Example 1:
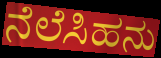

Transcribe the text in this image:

ನೆಲೆಸಿಹನು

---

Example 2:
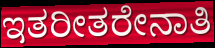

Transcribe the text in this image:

ಇತರೀತರೇನಾತಿ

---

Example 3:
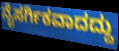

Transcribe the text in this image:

ನೈಸರ್ಗಿಕವಾದದ್ದು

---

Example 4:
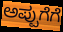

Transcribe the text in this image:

ಅಪ್ಪುಗೆಗೆ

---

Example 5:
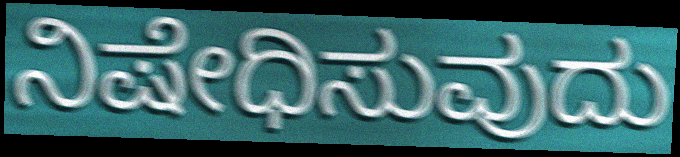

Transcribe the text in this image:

ನಿಷೇಧಿಸುವುದು